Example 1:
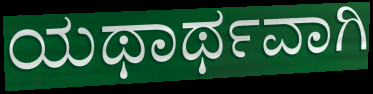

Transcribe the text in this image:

ಯಥಾರ್ಥವಾಗಿ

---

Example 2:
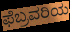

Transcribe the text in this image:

ಫೆಬ್ರವರಿಯ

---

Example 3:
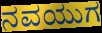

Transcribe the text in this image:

ನವಯುಗ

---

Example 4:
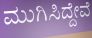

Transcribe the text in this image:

ಮುಗಿಸಿದ್ದೇವೆ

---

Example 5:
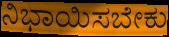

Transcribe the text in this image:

ನಿಭಾಯಿಸಬೇಕು